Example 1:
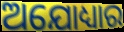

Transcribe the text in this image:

ଅଯୋଧ୍ୟାର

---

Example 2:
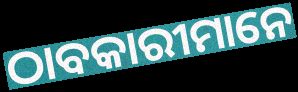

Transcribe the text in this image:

ଠାବକାରୀମାନେ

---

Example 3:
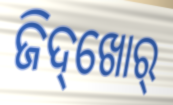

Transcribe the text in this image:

ଜିଦ୍‌ଖୋର୍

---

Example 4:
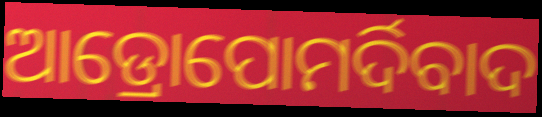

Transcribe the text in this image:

ଆଡ୍ରୋପୋମର୍ଦିବାଦ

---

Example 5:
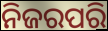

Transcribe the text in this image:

ନିଜରପରି